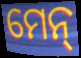
ମେନ୍